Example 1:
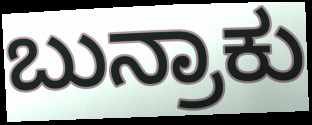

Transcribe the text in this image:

ಬುನ್ರಾಕು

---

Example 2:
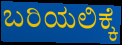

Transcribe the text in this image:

ಬರಿಯಲಿಕ್ಕೆ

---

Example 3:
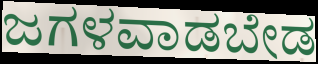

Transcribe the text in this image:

ಜಗಳವಾಡಬೇಡ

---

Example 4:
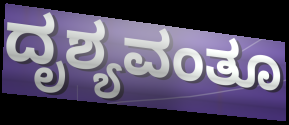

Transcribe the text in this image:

ದೃಶ್ಯವಂತೂ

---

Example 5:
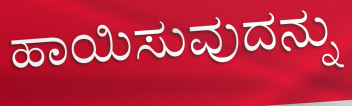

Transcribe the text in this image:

ಹಾಯಿಸುವುದನ್ನು